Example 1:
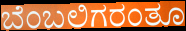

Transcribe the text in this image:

ಬೆಂಬಲಿಗರಂತೂ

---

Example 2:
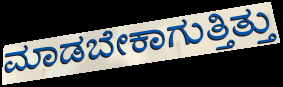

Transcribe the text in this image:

ಮಾಡಬೇಕಾಗುತ್ತಿತ್ತು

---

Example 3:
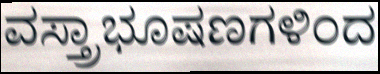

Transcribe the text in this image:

ವಸ್ತ್ರಾಭೂಷಣಗಳಿಂದ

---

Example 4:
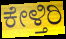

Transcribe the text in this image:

ಕೇಳ್ತಿರಿ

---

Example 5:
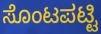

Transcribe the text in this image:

ಸೊಂಟಪಟ್ಟಿ